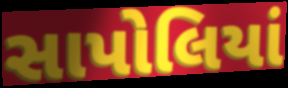
સાપોલિયાં